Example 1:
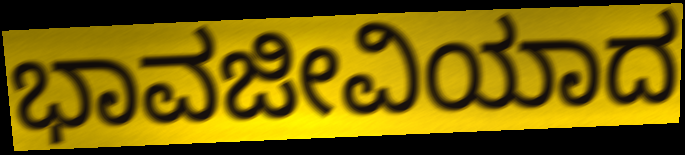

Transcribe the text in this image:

ಭಾವಜೀವಿಯಾದ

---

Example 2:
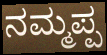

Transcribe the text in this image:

ನಮ್ಮಪ್ಪ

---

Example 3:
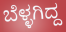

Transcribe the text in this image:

ಬೆಳ್ಳಗಿದ್ದ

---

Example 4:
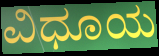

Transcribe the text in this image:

ವಿಧೂಯ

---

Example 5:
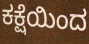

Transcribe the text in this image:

ಕಕ್ಷೆಯಿಂದ